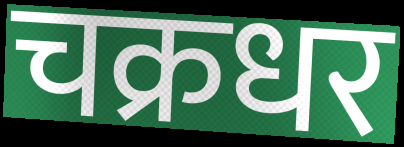
चक्रधर